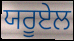
ਯਰੂਏਲ